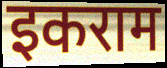
इकराम